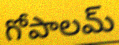
గోపాలమ్